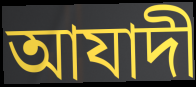
আযাদী